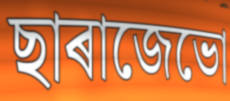
ছাৰাজেভো